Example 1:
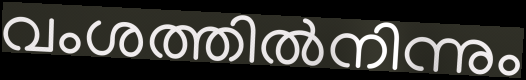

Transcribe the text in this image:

വംശത്തിൽനിന്നും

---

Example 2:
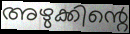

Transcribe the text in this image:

അഴുക്കിന്റെ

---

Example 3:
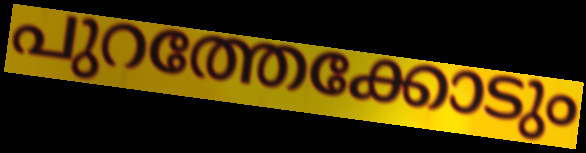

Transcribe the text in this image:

പുറത്തേക്കോടും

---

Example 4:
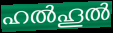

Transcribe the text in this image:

ഹൽഹൂൽ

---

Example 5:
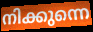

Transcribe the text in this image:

നിക്കുന്നെ